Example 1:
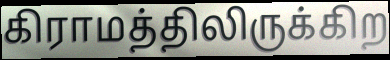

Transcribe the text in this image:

கிராமத்திலிருக்கிற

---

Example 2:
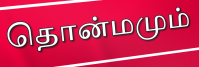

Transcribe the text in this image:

தொன்மமும்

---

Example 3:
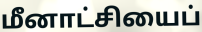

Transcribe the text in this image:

மீனாட்சியைப்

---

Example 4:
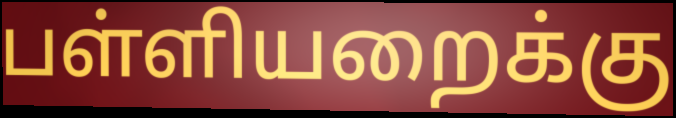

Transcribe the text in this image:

பள்ளியறைக்கு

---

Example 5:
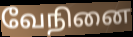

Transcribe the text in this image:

வேநினை